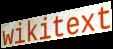
wikitext